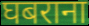
घबराना